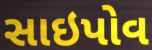
સાઇપોવ